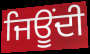
ਜਿਊਂਦੀ